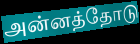
அன்னத்தோடு